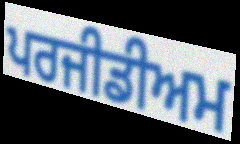
ਪਰਜੀਡੀਅਮ